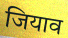
जियाव